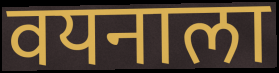
वयनाला